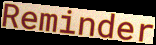
Reminder